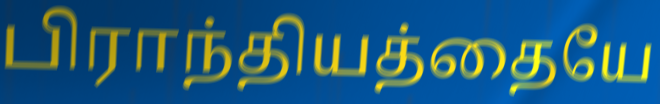
பிராந்தியத்தையே